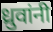
ध्रुवांनी